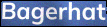
Bagerhat